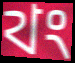
থং